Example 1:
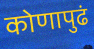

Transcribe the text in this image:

कोणापुढं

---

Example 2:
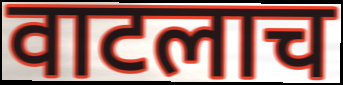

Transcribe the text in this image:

वाटलाच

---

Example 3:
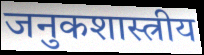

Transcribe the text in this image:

जनुकशास्त्रीय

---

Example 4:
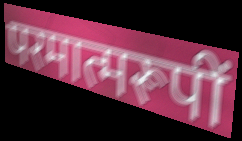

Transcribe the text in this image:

परमात्मरूपीं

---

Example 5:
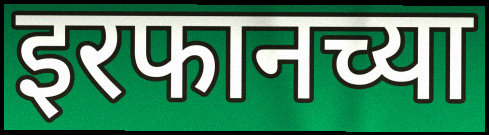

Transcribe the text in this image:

इरफानच्या